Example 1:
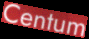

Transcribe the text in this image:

Centum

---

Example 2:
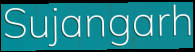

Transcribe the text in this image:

Sujangarh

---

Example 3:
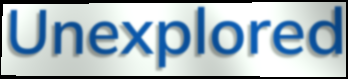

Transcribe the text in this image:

Unexplored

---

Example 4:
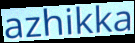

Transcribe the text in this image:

azhikka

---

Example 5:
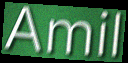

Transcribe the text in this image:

Amil